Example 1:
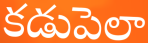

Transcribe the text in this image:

కడుపెలా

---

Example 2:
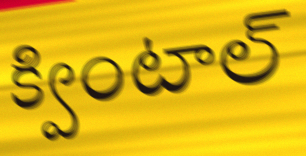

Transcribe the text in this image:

క్వింటాల్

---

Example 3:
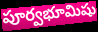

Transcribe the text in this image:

పూర్వభూమిషు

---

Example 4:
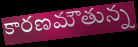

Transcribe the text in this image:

కారణమౌతున్న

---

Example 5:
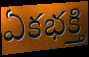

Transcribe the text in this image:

ఏకభక్తి